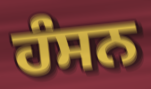
ਹੰਸਨ